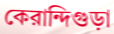
কেরান্দিগুড়া